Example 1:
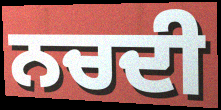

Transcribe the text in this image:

ਨਚਦੀ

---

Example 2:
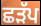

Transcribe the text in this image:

ਛੜੱਪ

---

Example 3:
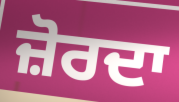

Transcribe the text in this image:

ਜ਼ੋਰਦਾ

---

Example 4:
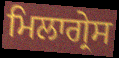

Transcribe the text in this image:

ਮਿਲਾਗ੍ਰੇਸ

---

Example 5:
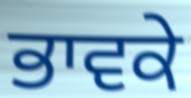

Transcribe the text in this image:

ਭਾਵਕੇ